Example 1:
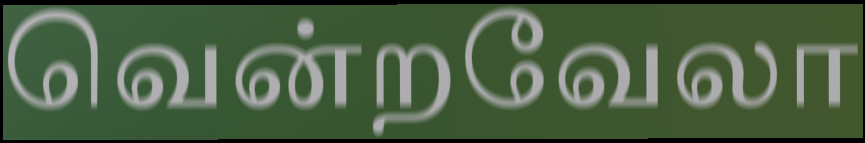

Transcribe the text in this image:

வென்றவேலா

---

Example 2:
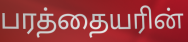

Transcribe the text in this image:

பரத்தையரின்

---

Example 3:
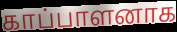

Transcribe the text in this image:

காப்பாளனாக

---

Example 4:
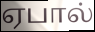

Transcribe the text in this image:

ஏபால்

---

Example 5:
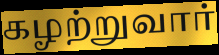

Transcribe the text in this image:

கழற்றுவார்